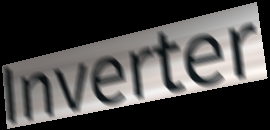
Inverter